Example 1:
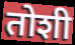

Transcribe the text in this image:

तोशी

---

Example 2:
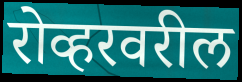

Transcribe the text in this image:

रोव्हरवरील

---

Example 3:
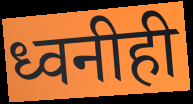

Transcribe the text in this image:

ध्वनीही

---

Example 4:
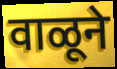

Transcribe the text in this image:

वाळूने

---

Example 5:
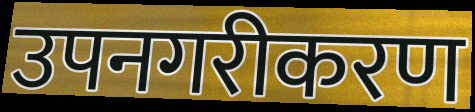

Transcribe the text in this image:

उपनगरीकरण